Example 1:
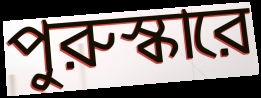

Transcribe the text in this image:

পুরুস্কারে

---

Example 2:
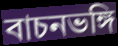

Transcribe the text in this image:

বাচনভঙ্গি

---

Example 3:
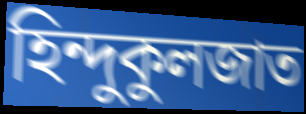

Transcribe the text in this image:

হিন্দুকুলজাত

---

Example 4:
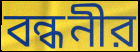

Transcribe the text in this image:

বন্ধনীর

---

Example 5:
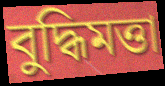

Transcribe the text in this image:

বুদ্ধিমত্তা